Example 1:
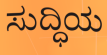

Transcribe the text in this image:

ಸುದ್ಧಿಯ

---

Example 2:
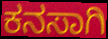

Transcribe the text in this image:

ಕನಸಾಗಿ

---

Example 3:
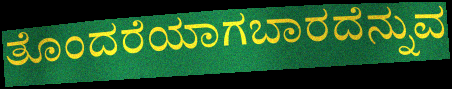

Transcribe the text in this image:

ತೊಂದರೆಯಾಗಬಾರದೆನ್ನುವ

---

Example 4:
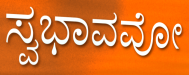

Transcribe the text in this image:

ಸ್ವಭಾವವೋ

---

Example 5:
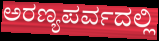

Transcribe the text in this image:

ಅರಣ್ಯಪರ್ವದಲ್ಲಿ